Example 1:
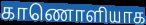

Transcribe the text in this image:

காணொளியாக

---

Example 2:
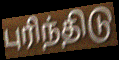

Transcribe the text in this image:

புரிந்திடு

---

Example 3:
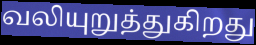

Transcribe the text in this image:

வலியுறுத்துகிறது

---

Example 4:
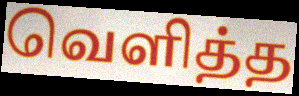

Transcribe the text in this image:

வெளித்த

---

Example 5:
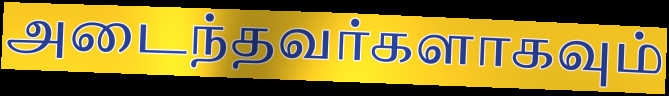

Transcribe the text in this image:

அடைந்தவர்களாகவும்